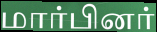
மார்பினர்